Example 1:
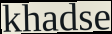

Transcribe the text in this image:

khadse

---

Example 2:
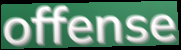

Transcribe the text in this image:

offense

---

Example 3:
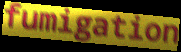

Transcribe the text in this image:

fumigation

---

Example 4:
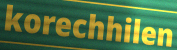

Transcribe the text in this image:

korechhilen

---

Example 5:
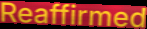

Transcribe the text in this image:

Reaffirmed